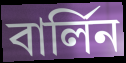
বার্লিন